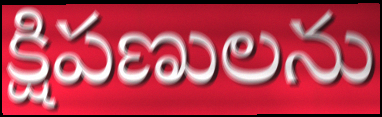
క్షిపణులను